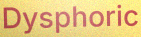
Dysphoric